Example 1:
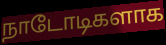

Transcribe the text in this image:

நாடோடிகளாக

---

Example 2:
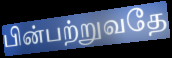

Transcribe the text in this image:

பின்பற்றுவதே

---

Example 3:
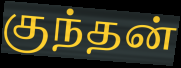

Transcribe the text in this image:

குந்தன்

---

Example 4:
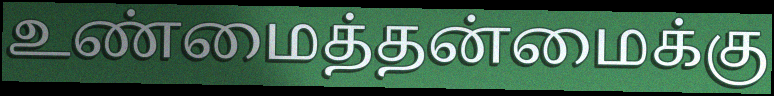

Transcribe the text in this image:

உண்மைத்தன்மைக்கு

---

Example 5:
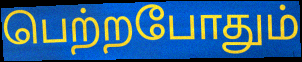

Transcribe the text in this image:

பெற்றபோதும்